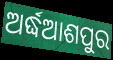
ଅର୍ଦ୍ଧଆଶପୁର